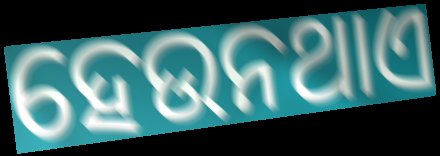
ହେଉନଥାଏ